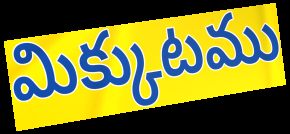
మిక్కుటము